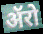
ॲरो